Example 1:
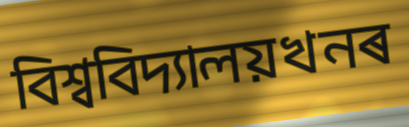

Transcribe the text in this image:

বিশ্ববিদ্যালয়খনৰ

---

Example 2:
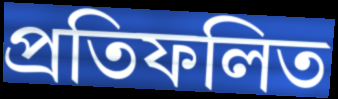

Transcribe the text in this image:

প্ৰতিফলিত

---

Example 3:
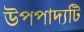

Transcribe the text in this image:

উপপাদ্যটি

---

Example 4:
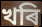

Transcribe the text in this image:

খৰি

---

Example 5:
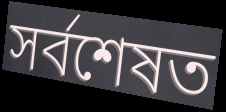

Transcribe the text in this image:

সৰ্বশেষত